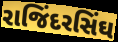
રાજિંદરસિંઘ